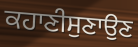
ਕਹਾਣੀਸੁਣਾਉਣ